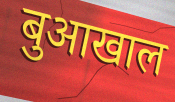
बुआखाल